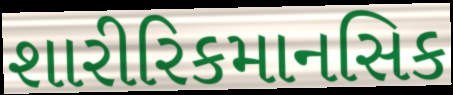
શારીરિકમાનસિક